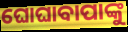
ଘୋଘାବାପାଙ୍କୁ